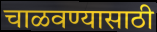
चाळवण्यासाठी